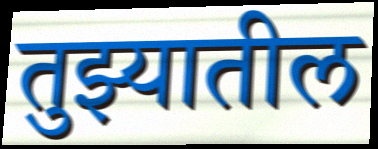
तुझ्यातील